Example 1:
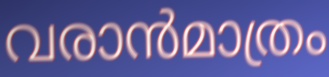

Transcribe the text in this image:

വരാൻമാത്രം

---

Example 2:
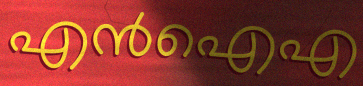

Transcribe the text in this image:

എൻഐഎ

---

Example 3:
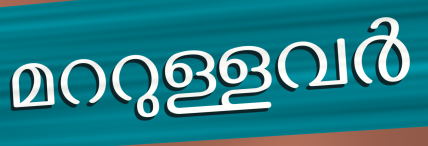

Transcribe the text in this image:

മററുള്ളവർ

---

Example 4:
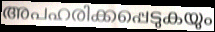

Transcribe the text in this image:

അപഹരിക്കപ്പെടുകയും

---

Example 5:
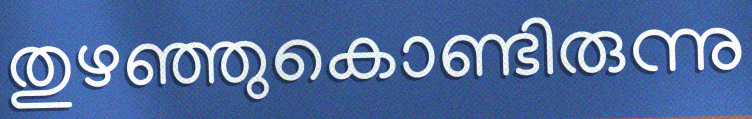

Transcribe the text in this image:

തുഴഞ്ഞുകൊണ്ടിരുന്നു